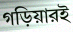
গড়িয়ারই